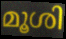
മൂശി